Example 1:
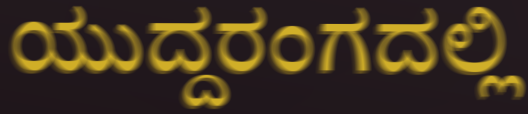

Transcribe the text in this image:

ಯುದ್ದರಂಗದಲ್ಲಿ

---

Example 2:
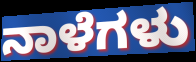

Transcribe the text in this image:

ನಾಳೆಗಳು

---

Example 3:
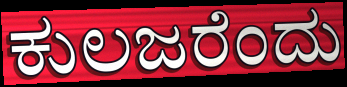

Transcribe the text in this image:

ಕುಲಜರೆಂದು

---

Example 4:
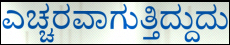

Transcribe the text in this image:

ಎಚ್ಚರವಾಗುತ್ತಿದ್ದುದು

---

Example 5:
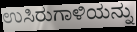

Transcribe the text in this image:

ಉಸಿರುಗಾಳಿಯನ್ನು